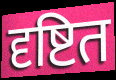
दृष्टित